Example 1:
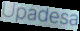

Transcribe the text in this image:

Upadesa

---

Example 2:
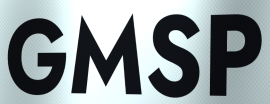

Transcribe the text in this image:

GMSP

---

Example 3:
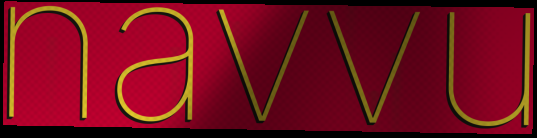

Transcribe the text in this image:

navvu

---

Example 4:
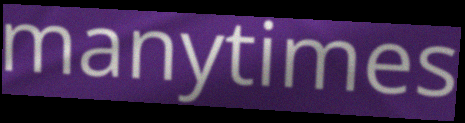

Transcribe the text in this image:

manytimes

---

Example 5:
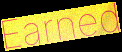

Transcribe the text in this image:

Earned